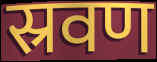
स्रवण